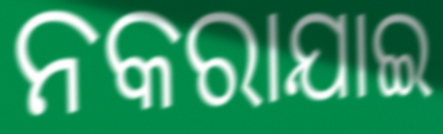
ନକରାଯାଇ